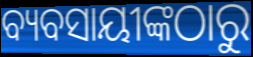
ବ୍ୟବସାୟୀଙ୍କଠାରୁ